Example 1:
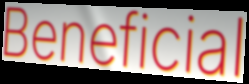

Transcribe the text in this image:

Beneficial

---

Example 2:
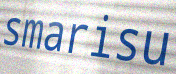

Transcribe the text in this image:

smarisu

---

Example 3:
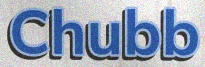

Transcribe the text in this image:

Chubb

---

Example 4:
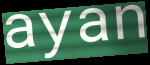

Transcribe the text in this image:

ayan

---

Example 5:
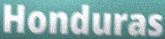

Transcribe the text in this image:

Honduras